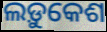
ଲଡ଼ୁକେଶ